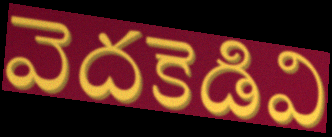
వెదకెడివి